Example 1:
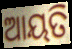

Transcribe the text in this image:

ଆୟତି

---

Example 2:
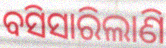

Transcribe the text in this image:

ବସିସାରିଲାଣି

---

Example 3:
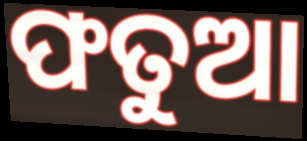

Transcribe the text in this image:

ଫତୁଆ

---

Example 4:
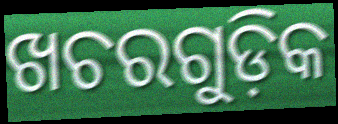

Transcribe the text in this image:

ଖଚରଗୁଡ଼ିକ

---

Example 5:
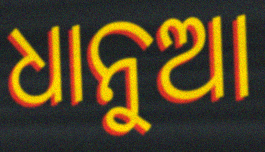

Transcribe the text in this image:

ଧାନୁଆ